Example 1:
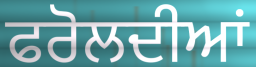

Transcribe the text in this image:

ਫਰੋਲਦੀਆਂ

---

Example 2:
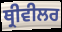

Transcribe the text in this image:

ਥ੍ਰੀਵੀਲਰ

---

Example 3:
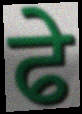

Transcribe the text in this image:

ਫੇ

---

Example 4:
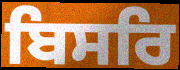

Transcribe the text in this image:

ਬਿਸਰਿ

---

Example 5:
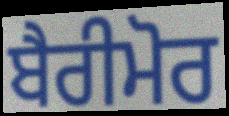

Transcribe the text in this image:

ਬੈਰੀਮੋਰ